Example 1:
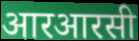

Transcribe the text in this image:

आरआरसी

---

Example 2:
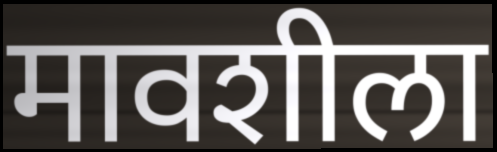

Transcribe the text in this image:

मावशीला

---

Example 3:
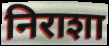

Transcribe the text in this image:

निराशा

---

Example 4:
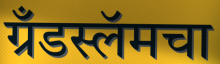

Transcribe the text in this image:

ग्रँडस्लॅमचा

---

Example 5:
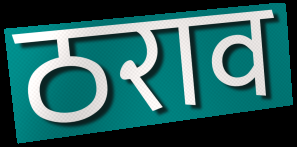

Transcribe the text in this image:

ठराव